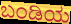
ಬಂಡಿಯ